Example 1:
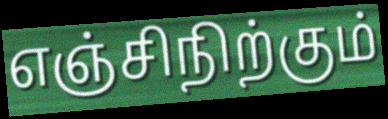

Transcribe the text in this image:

எஞ்சிநிற்கும்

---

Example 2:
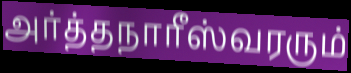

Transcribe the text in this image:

அர்த்தநாரீஸ்வரரும்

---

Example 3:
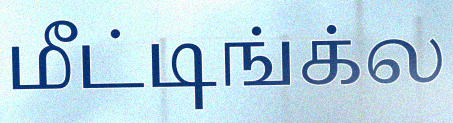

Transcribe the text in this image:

மீட்டிங்க்ல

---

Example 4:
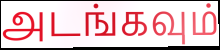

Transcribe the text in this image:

அடங்கவும்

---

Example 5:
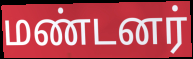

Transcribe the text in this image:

மண்டனர்